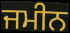
ਜਮੀਨ